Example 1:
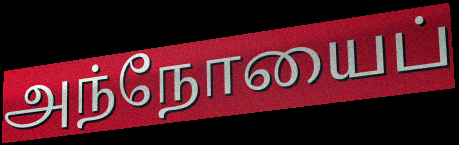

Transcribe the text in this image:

அந்நோயைப்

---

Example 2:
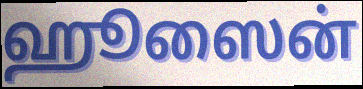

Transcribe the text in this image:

ஹூஸைன்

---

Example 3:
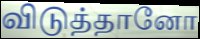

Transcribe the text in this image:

விடுத்தானோ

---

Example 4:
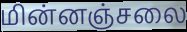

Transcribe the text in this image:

மின்னஞ்சலை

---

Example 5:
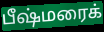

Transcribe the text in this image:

பீஷ்மரைக்